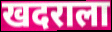
खदराला